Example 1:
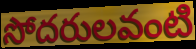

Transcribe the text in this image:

సోదరులవంటి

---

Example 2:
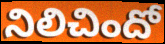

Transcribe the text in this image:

నిలిచిందో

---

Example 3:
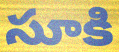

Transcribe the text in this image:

సూకి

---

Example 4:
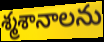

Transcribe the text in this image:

శ్మశానాలను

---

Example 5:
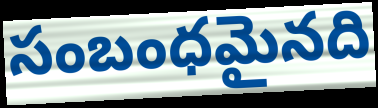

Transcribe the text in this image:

సంబంధమైనది